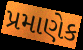
પ્રમાણેક